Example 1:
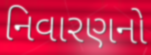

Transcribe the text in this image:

નિવારણનો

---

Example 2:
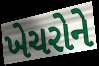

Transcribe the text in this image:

ખેચરોને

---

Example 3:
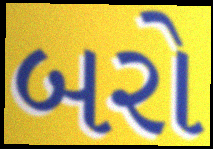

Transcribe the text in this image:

બરો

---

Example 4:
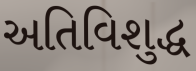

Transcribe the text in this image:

અતિવિશુદ્ધ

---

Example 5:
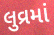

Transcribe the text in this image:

લુવ્રમાં